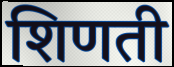
शिणती